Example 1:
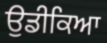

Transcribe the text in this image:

ਉਡੀਕਿਆ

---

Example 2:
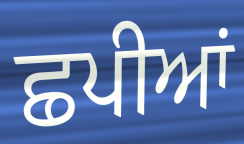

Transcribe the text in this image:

ਛਪੀਆਂ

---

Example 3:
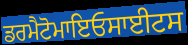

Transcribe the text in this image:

ਡਰਮੈਟੋਮਾਇਓਸਾਈਟਸ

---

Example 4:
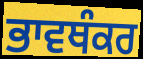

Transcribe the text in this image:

ਭਾਵਥੰਕਰ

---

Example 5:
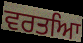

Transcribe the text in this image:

ਵਰਤਆਿ